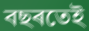
বছৰতেই